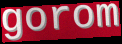
gorom